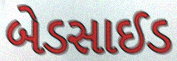
બેડસાઈડ